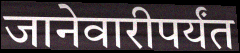
जानेवारीपर्यंत